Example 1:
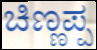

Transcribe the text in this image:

ಚಿಣ್ಣಪ್ಪ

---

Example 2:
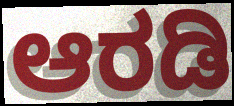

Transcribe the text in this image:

ಆರಡಿ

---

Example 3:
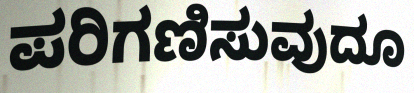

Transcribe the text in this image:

ಪರಿಗಣಿಸುವುದೂ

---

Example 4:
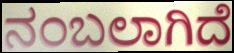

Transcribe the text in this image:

ನಂಬಲಾಗಿದೆ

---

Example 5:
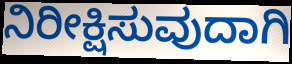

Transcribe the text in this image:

ನಿರೀಕ್ಷಿಸುವುದಾಗಿ